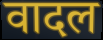
वादल